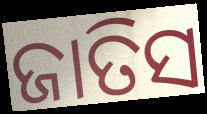
ଜାତିସ